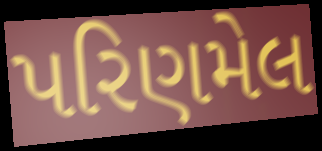
પરિણમેલ